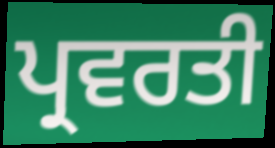
ਪ੍ਰਵਰਤੀ